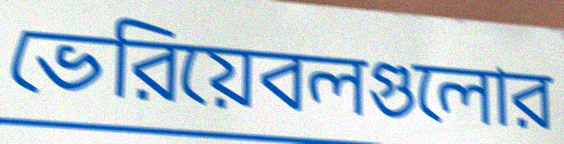
ভেরিয়েবলগুলোর